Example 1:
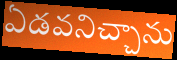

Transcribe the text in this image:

ఏడవనిచ్చాను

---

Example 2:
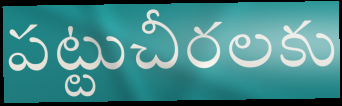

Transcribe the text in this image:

పట్టుచీరలకు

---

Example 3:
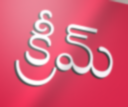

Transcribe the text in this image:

క్రీమ్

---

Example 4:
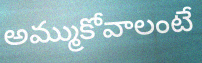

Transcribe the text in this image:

అమ్ముకోవాలంటే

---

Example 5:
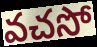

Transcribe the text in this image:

వచసో